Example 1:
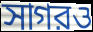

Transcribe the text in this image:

সাগরও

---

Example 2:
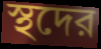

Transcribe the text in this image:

স্থদের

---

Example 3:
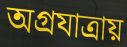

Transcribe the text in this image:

অগ্রযাত্রায়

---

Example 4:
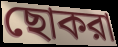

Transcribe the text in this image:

ছোকরা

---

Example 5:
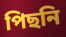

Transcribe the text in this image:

পিছনি